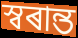
স্বৰান্ত